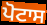
ਪੋਟਾਸ